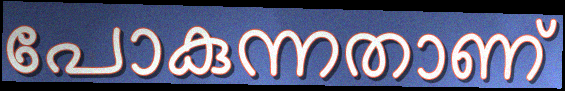
പോകുന്നതാണ്